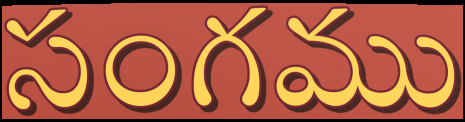
సంగము